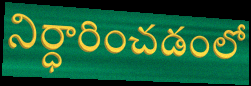
నిర్ధారించడంలో